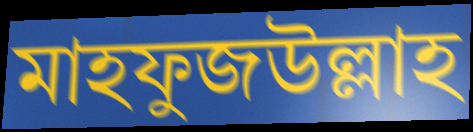
মাহফুজউল্লাহ